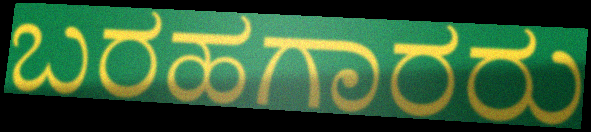
ಬರಹಗಾರರು